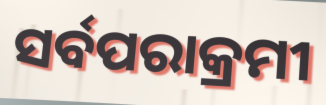
ସର୍ବପରାକ୍ରମୀ